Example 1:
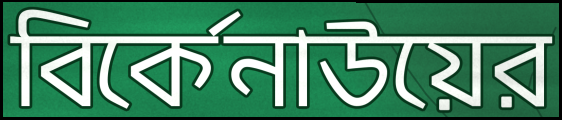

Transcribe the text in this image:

বির্কেনাউয়ের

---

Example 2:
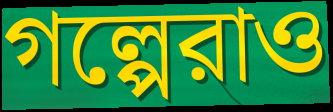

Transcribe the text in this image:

গল্পেরাও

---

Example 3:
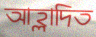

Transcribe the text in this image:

আহ্লাদিত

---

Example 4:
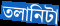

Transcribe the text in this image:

তলানিটা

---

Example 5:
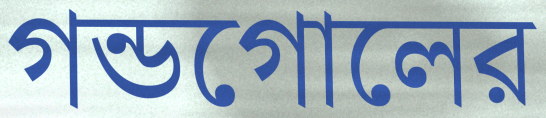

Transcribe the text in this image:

গন্ডগোলের